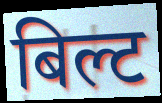
बिल्ट